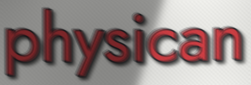
physican